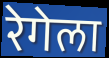
रेगेला